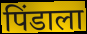
पिंडाला